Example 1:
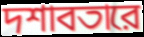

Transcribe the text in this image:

দশাবতারে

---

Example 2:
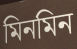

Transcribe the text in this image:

মিনমিন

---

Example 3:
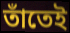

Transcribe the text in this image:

তাঁতেই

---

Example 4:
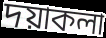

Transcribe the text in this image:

দয়াকলা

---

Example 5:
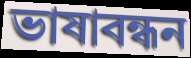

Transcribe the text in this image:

ভাষাবন্ধন